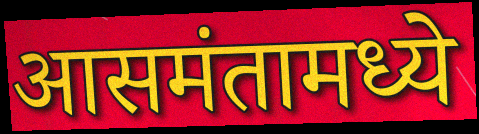
आसमंतामध्ये